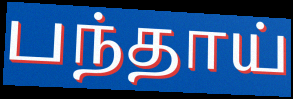
பந்தாய்